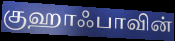
குஹாஃபாவின்